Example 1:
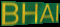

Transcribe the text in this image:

BHAI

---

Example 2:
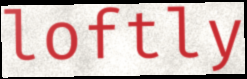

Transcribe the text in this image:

loftly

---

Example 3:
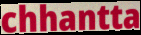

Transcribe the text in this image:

chhantta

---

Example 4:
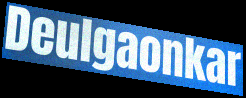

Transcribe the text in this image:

Deulgaonkar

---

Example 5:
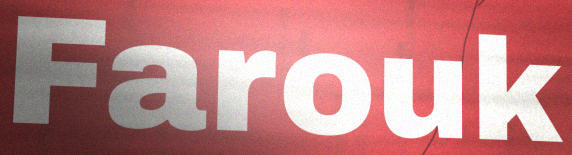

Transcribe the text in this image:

Farouk